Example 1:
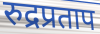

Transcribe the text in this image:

रुद्रप्रताप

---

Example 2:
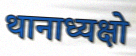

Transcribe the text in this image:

थानाध्यक्षो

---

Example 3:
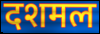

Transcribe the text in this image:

दशमल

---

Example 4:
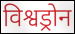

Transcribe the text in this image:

विश्वड्रोन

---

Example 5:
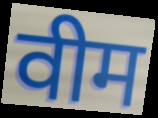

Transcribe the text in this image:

वीम